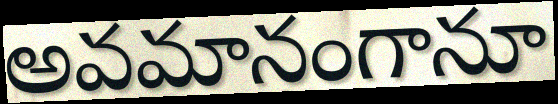
అవమానంగానూ